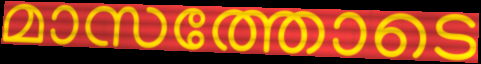
മാസത്തോടെ